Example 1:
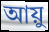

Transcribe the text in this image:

আয়ু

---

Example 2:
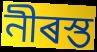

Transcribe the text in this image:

নীৰস্ত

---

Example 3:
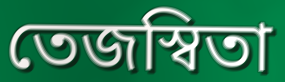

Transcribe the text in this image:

তেজস্বিতা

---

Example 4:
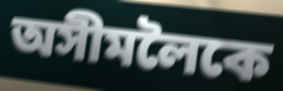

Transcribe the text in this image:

অসীমলৈকে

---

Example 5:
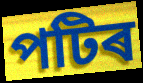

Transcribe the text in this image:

পটিৰ